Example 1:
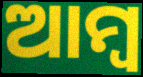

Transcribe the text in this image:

ଆମ୍ୱ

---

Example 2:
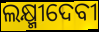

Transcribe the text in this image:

ଲକ୍ଷ୍ମୀଦେବୀ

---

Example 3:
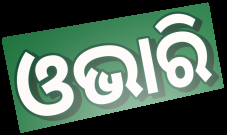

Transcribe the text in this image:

ଓଭାରି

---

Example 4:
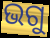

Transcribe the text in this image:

ଭଗୁ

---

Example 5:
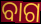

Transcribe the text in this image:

ବାଗ